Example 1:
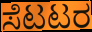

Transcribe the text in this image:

ಸೆಟಟರ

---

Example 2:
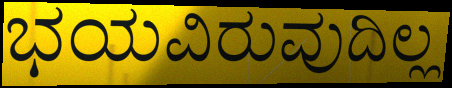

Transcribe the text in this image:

ಭಯವಿರುವುದಿಲ್ಲ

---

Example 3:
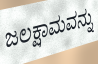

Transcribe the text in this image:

ಜಲಕ್ಷಾಮವನ್ನು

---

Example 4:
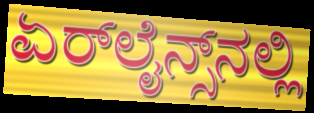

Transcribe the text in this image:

ಏರ್‌ಲೈನ್ಸ್‌ನಲ್ಲಿ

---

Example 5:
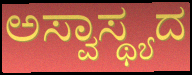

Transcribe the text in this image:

ಅಸ್ವಾಸ್ಥ್ಯದ